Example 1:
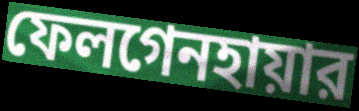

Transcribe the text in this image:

ফেলগেনহায়ার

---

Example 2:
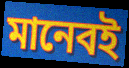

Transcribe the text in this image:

মানেবই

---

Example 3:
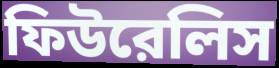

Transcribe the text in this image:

ফিউরেলিস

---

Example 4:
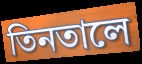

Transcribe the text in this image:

তিনতালে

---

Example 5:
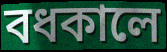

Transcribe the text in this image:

বধকালে